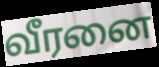
வீரனை